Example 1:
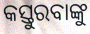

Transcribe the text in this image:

କସ୍ତୁରବାଙ୍କୁ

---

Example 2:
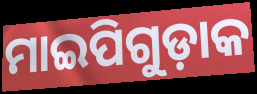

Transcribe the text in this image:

ମାଇପିଗୁଡ଼ାକ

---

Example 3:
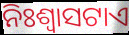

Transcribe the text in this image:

ନିଃଶ୍ଵାସଟାଏ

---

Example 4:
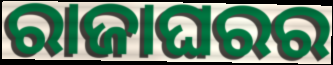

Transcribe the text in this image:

ରାଜାଘରର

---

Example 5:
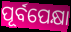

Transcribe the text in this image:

ପୂର୍ବପେକ୍ଷା